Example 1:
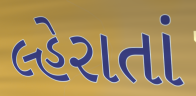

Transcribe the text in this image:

લ્હેરાતાં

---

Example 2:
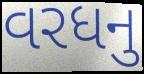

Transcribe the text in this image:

વરધનુ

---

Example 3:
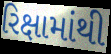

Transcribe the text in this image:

રિક્ષામાંથી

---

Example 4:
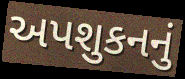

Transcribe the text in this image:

અપશુકનનું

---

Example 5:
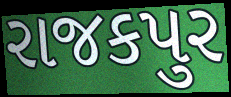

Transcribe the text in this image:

રાજકપુર